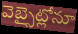
వెబ్సైట్లోనూ